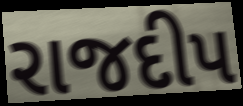
રાજદીપ